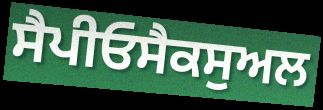
ਸੈਪੀਓਸੈਕਸੁਅਲ